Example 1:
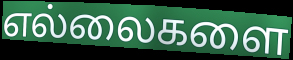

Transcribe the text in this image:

எல்லைகளை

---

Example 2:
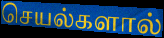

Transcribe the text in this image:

செயல்களால்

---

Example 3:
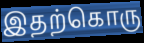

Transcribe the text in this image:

இதற்கொரு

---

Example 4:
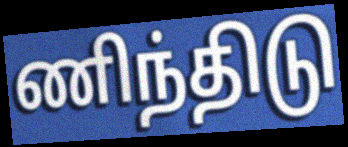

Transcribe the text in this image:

ணிந்திடு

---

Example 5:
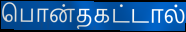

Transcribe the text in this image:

பொன்தகட்டால்